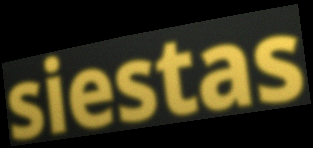
siestas